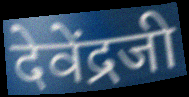
देवेंद्रजी